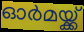
ഓർമയ്ക്ക്